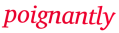
poignantly